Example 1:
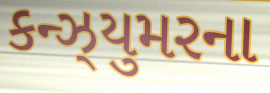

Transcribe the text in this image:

કન્ઝ્યુમરના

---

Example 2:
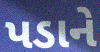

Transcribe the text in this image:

પડાને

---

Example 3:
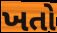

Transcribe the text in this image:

ખતો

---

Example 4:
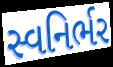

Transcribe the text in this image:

સ્વનિર્ભર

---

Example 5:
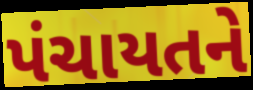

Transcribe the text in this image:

પંચાયતને